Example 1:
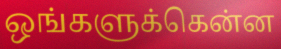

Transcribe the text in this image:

ஒங்களுக்கென்ன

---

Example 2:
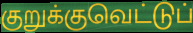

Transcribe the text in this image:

குறுக்குவெட்டுப்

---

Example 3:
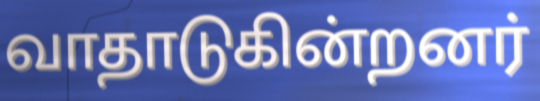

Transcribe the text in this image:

வாதாடுகின்றனர்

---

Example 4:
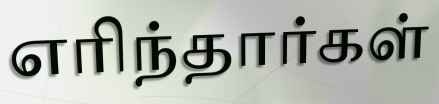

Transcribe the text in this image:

எரிந்தார்கள்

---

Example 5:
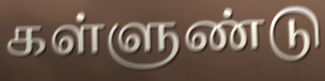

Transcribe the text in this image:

கள்ளுண்டு